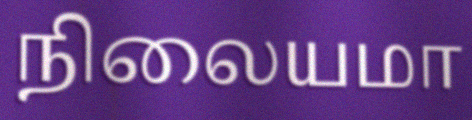
நிலையமா